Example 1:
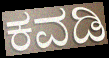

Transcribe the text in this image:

ಕವಡಿ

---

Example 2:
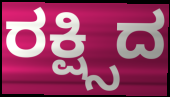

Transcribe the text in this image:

ರಕ್ಷ್ಸಿದ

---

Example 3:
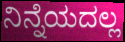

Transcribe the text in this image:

ನಿನ್ನೆಯದಲ್ಲ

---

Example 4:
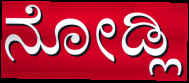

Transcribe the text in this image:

ನೋಡ್ಲಿ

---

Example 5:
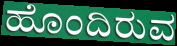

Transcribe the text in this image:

ಹೊಂದಿರುವ